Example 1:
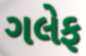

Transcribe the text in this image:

ગલેફ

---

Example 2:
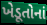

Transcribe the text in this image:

ખેડૂતોનાં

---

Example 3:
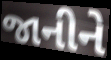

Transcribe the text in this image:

જાનીને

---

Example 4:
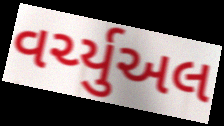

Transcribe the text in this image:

વર્ચ્યુઅલ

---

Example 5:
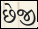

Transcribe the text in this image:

છેજી